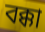
বক্কা